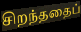
சிறந்ததைப்